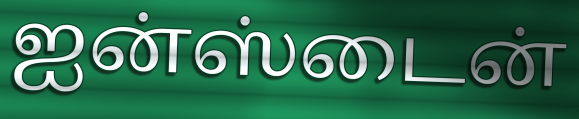
ஐன்ஸ்டைன்